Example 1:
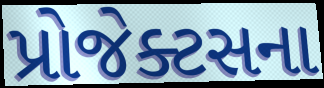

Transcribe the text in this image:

પ્રોજેક્ટસના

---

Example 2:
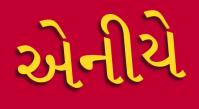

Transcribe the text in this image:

એનીયે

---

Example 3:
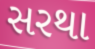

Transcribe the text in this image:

સરથા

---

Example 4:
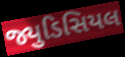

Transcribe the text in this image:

જ્યુડિસિયલ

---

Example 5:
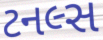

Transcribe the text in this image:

ટનલ્સ